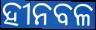
ହୀନବଳ